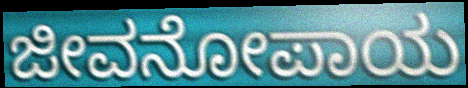
ಜೀವನೋಪಾಯ